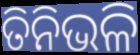
ତିନିଭଳି